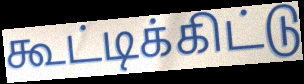
கூட்டிக்கிட்டு